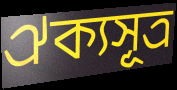
ঐক্যসূত্র